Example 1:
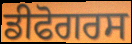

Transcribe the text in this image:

ਡੀਫੋਗਰਸ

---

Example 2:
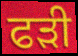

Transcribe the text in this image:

ਫੜੀ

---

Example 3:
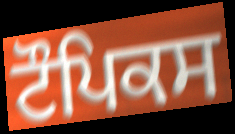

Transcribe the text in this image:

ਟੌਪਿਕਸ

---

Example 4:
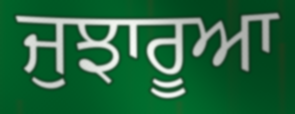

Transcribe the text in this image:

ਜੁਝਾਰੂਆ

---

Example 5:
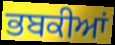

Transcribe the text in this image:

ਭਬਕੀਆਂ